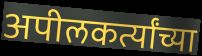
अपीलकर्त्यांच्या